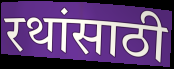
रथांसाठी